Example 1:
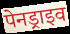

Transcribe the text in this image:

पेनड्राइव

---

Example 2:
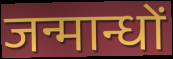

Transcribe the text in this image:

जन्मान्धों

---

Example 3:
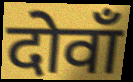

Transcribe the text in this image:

दोवाँ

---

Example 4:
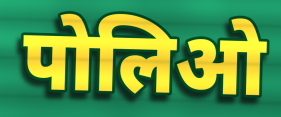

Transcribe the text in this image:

पोलिओ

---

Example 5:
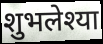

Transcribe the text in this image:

शुभलेश्या